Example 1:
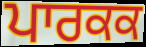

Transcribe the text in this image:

ਪਾਰਕਕ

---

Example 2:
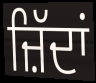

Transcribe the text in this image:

ਜ਼ਿੱਦਾਂ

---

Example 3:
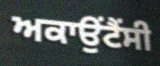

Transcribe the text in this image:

ਅਕਾਉਂਟੈਂਸੀ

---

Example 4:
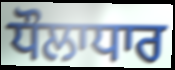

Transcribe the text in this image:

ਧੌਲਾਧਾਰ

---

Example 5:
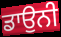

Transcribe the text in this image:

ਡਾਉਨੀ